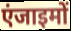
एंजाइमों